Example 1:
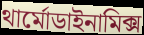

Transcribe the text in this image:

থার্মোডাইনামিক্স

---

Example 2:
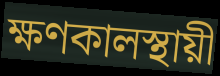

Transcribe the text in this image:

ক্ষণকালস্থায়ী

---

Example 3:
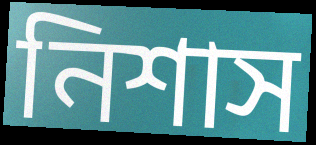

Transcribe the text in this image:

নিশাস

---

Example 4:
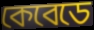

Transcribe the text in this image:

কেবেডে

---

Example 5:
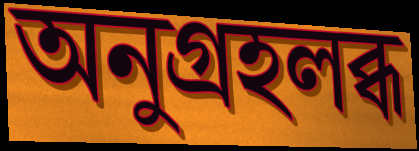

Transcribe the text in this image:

অনুগ্রহলব্ধ